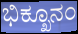
ಭಿಕ್ಖೂನಂ